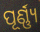
ପୂର୍ଣ୍ଣ୍ୟ